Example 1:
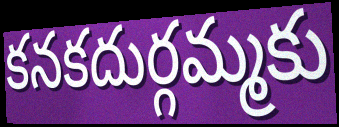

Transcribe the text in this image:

కనకదుర్గమ్మకు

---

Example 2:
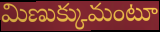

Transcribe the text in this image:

మిణుక్కుమంటూ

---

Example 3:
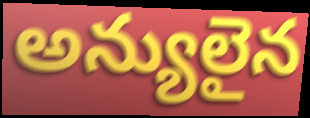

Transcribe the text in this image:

అన్యులైన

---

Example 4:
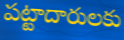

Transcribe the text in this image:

పట్టాదారులకు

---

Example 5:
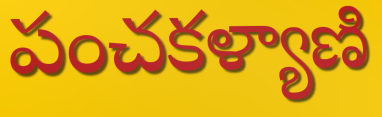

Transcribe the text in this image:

పంచకళ్యాణి